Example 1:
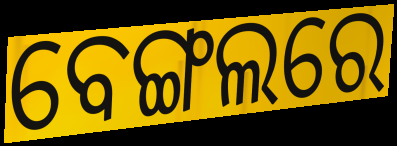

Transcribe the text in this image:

ବେଙ୍ଗଲରେ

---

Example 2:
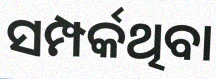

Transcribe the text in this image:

ସମ୍ପର୍କଥିବା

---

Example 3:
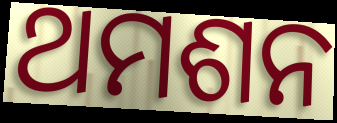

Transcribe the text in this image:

ଥମଶନ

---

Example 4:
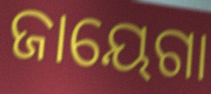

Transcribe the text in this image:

ଜାୟେଗା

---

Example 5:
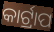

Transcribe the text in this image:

କାର୍ଟ୍ରାପ